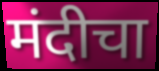
मंदीचा